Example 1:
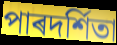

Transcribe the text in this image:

পাৰদৰ্শিতা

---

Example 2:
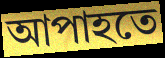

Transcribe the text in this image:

আপাহতে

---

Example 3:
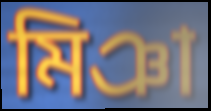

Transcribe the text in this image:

মিঞা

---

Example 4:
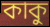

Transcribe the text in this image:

কাকু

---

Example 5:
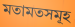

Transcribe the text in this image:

মতামতসমূহ